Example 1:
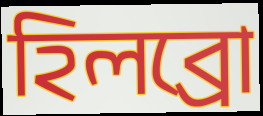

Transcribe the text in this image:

হিলব্রো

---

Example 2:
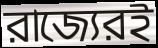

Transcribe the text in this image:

রাজ্যেরই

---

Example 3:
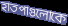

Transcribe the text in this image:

হাতপাগুলোকে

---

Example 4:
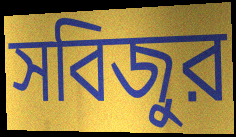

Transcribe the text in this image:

সবিজুর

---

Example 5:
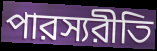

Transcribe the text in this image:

পারস্যরীতি